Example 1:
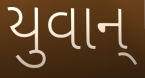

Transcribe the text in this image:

યુવાન્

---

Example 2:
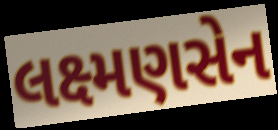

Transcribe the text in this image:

લક્ષ્મણસેન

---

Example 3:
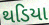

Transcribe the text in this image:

થડિયા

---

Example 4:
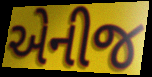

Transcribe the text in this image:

એનીજ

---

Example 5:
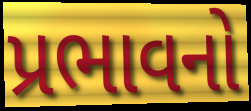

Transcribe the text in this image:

પ્રભાવનો